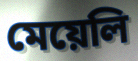
মেয়েলি